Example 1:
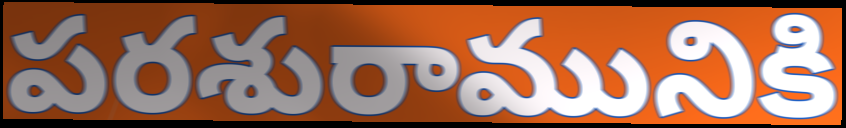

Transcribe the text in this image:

పరశురామునికి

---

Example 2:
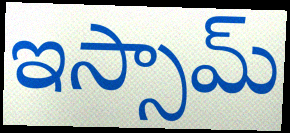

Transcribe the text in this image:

ఇస్సామ్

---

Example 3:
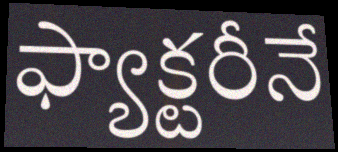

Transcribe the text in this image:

ఫ్యాక్టరీనే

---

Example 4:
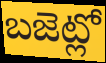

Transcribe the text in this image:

బజెట్లో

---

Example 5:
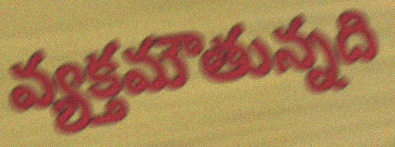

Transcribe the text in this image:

వ్యక్తమౌతున్నది